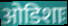
ओडिशाः